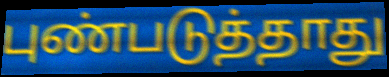
புண்படுத்தாது